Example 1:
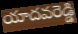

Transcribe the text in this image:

యాదవరెడ్డి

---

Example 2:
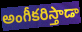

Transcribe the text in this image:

అంగీకరిస్తాడా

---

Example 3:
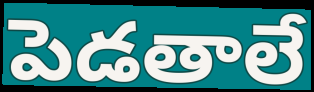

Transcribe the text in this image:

పెడతాలే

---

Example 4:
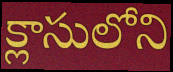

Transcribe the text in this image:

క్లాసులోని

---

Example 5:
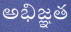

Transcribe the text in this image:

అభిజ్ఞత